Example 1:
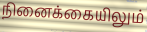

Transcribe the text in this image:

நினைக்கையிலும்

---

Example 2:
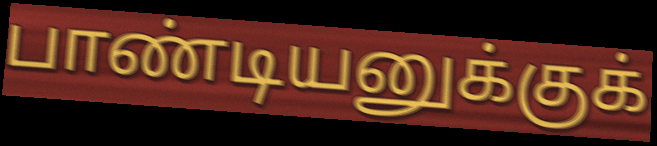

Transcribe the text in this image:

பாண்டியனுக்குக்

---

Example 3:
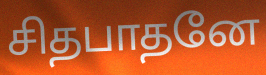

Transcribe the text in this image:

சிதபாதனே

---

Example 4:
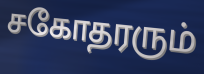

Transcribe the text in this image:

சகோதரரும்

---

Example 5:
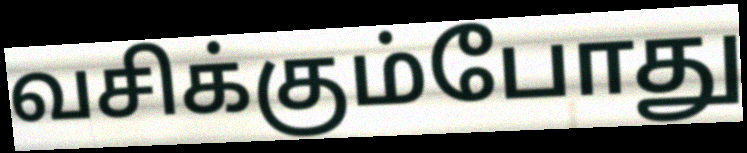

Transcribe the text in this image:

வசிக்கும்போது